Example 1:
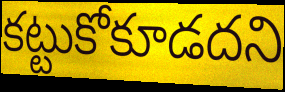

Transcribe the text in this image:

కట్టుకోకూడదని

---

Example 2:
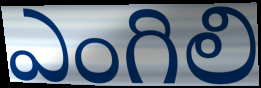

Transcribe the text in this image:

ఎంగిలి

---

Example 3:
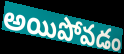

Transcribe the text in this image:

అయిపోవడం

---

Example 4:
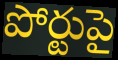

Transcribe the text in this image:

పోర్టుపై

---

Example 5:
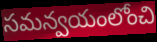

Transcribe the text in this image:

సమన్వయంలోంచి